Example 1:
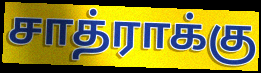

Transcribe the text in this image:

சாத்ராக்கு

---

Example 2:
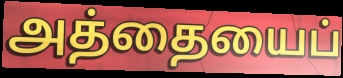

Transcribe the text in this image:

அத்தையைப்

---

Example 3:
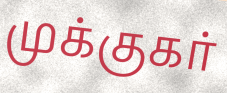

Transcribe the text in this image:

முக்குகர்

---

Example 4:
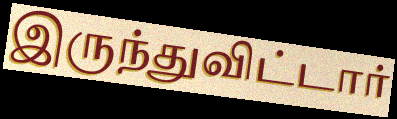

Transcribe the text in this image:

இருந்துவிட்டார்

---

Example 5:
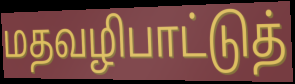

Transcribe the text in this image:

மதவழிபாட்டுத்